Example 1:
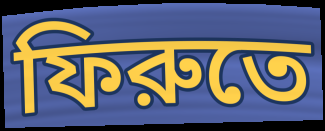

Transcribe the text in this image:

ফিরুতে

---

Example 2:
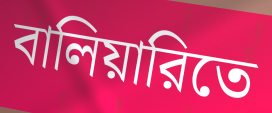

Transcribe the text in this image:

বালিয়ারিতে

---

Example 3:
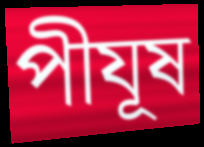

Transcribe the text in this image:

পীযূষ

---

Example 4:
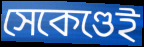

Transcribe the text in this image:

সেকেণ্ডেই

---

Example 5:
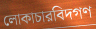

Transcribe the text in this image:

লোকাচারবিদগণ